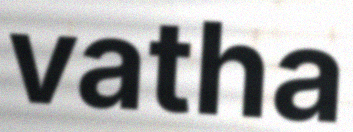
vatha